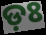
ଡ଼ଃ